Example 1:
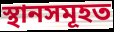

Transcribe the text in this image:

স্থানসমূহত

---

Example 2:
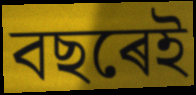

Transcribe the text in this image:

বছৰেই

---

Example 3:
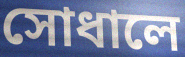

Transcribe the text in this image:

সোধালে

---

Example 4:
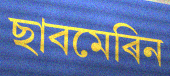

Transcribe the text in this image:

ছাবমেৰিন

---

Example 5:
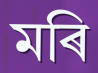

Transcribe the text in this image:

মৰি